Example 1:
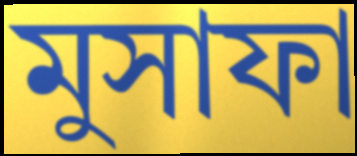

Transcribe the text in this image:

মুসাফা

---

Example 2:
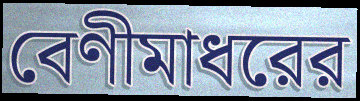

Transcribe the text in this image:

বেণীমাধরের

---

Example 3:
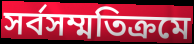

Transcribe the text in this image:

সর্বসম্মতিক্রমে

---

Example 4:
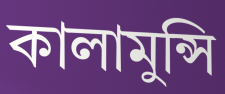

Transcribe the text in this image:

কালামুন্সি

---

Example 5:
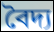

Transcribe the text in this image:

বৈদ্য